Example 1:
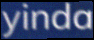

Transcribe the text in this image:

yinda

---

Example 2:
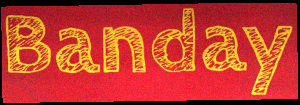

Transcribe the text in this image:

Banday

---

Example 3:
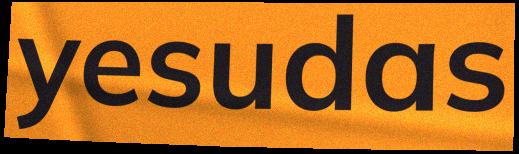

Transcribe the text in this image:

yesudas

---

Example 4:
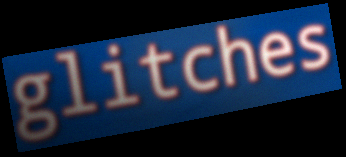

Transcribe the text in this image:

glitches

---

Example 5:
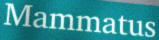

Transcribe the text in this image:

Mammatus